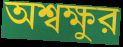
অশ্বক্ষুর